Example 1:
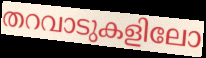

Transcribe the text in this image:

തറവാടുകളിലോ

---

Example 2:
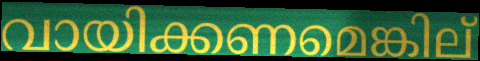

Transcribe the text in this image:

വായിക്കണമെങ്കില്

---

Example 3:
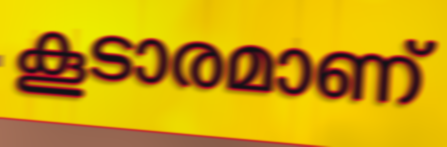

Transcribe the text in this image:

കൂടാരമാണ്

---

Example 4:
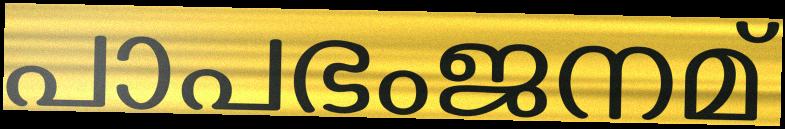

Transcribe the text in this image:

പാപഭംജനമ്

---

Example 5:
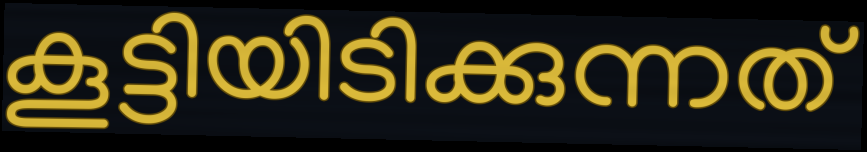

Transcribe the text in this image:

കൂട്ടിയിടിക്കുന്നത്